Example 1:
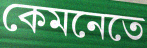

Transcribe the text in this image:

কেমনেতে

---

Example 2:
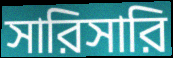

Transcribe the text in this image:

সারিসারি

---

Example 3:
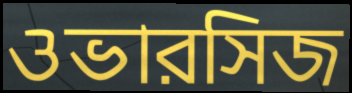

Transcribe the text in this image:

ওভারসিজ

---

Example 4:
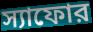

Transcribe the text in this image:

স্যাফোর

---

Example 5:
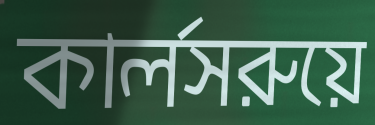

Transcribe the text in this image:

কার্লসরুয়ে